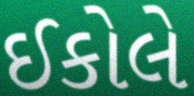
ઈકોલે